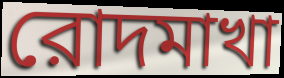
রোদমাখা